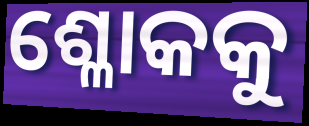
ଶ୍ଳୋକକୁ